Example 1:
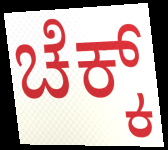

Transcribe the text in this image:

ಚೆಕ್ಕ್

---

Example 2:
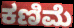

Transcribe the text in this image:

ಕಣಿಮೆ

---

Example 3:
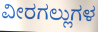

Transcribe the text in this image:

ವೀರಗಲ್ಲುಗಳ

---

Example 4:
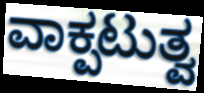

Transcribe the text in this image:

ವಾಕ್ಪಟುತ್ವ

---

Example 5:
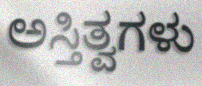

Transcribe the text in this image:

ಅಸ್ತಿತ್ವಗಳು